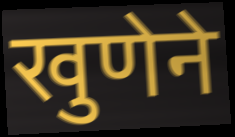
खुणेने